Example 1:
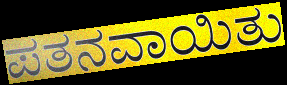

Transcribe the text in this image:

ಪತನವಾಯಿತು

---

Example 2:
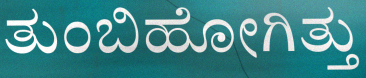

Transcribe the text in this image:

ತುಂಬಿಹೋಗಿತ್ತು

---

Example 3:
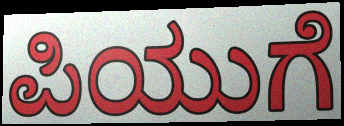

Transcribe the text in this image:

ಪಿಯುಗೆ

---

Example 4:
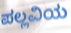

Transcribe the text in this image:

ಪಲ್ಲವಿಯ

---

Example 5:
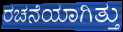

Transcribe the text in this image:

ರಚನೆಯಾಗಿತ್ತು